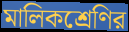
মালিকশ্রেণির